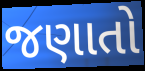
જણાતો